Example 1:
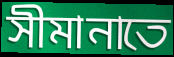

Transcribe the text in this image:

সীমানাতে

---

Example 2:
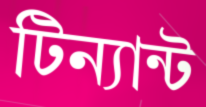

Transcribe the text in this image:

টিন্যান্ট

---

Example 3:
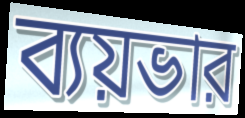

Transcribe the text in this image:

ব্যয়ভার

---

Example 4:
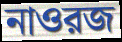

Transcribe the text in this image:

নাওরজ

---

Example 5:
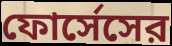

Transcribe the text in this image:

ফোর্সেসের